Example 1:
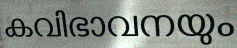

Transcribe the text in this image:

കവിഭാവനയും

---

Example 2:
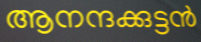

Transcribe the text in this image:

ആനന്ദക്കുട്ടൻ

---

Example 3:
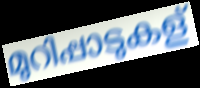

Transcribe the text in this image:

മുറിപ്പാടുകള്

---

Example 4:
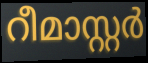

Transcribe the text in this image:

റീമാസ്റ്റർ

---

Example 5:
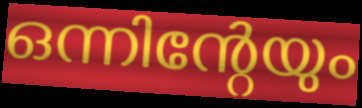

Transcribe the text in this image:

ഒന്നിന്റേയും